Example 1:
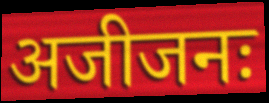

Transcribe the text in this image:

अजीजनः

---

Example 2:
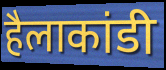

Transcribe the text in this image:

हैलाकांडी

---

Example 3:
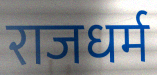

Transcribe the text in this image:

राजधर्म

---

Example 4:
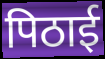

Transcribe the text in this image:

पिठाई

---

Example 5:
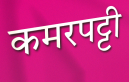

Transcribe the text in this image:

कमरपट्टी